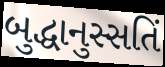
બુદ્ધાનુસ્સતિં